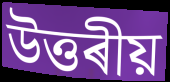
উত্তৰীয়